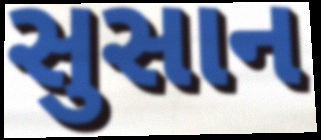
સુસાન